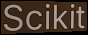
Scikit